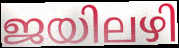
ജയിലഴി